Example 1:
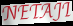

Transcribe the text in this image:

NETAJI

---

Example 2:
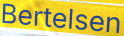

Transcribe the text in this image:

Bertelsen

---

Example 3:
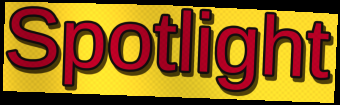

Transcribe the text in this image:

Spotlight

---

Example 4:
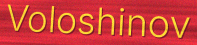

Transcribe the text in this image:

Voloshinov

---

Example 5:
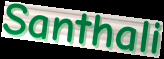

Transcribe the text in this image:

Santhali